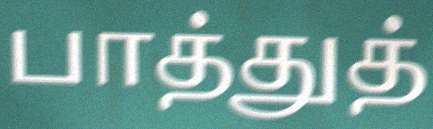
பாத்துத்